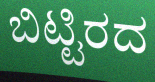
ಬಿಟ್ಟಿರದ